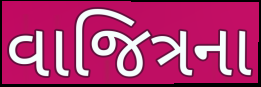
વાજિત્રના